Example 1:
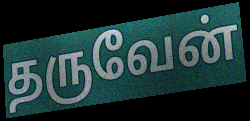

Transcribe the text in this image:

தருவேன்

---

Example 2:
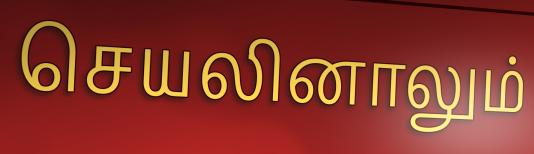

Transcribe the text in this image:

செயலினாலும்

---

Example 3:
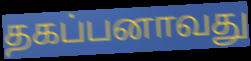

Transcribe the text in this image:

தகப்பனாவது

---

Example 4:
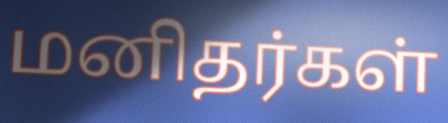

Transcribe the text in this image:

மனிதர்கள்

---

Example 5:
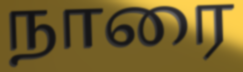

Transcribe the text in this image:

நாரை